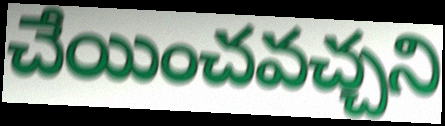
చేయించవచ్చని